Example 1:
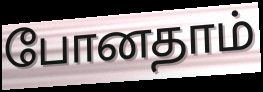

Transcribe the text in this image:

போனதாம்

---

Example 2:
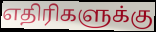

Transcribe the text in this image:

எதிரிகளுக்கு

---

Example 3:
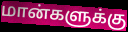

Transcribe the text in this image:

மான்களுக்கு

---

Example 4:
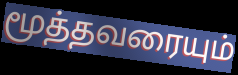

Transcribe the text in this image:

மூத்தவரையும்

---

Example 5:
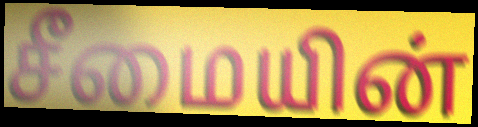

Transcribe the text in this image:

சீமையின்